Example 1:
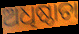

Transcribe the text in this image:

ଅଧିଷ୍ଠାତା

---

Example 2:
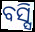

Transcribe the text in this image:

ବସ୍ସି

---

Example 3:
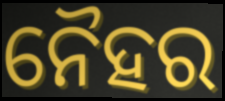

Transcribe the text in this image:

ନୈହର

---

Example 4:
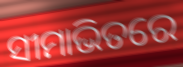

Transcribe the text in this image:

ସୀମାଭିତରେ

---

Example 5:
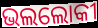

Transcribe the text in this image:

ଭଲଲୋକୀ